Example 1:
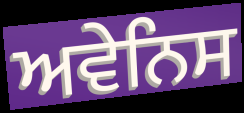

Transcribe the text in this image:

ਅਵੇਨਿਸ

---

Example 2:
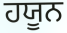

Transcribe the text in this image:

ਹਯੂਨ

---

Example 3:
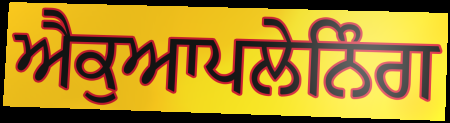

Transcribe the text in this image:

ਐਕੁਆਪਲੇਨਿੰਗ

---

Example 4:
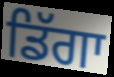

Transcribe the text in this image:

ਡਿੱਗਾ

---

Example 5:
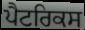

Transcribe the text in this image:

ਪੈਟਰਿਕਸ